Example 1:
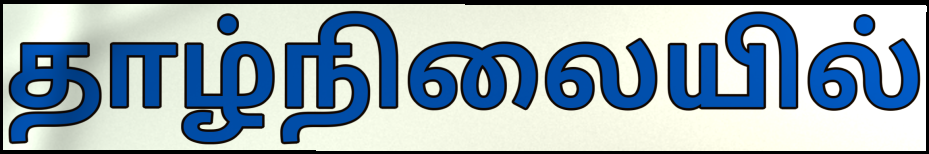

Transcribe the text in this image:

தாழ்நிலையில்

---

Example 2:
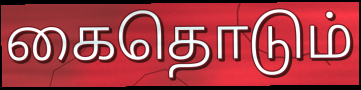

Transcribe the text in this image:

கைதொடும்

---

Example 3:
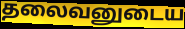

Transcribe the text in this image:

தலைவனுடைய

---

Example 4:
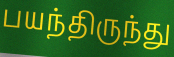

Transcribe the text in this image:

பயந்திருந்து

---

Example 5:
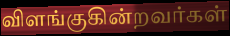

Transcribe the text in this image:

விளங்குகின்றவர்கள்